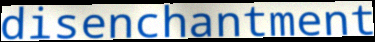
disenchantment